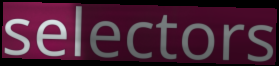
selectors